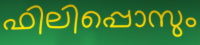
ഫിലിപ്പൊസും